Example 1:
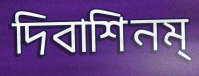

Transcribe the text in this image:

দিবাশিনম্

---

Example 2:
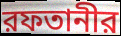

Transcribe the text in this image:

রফতানীর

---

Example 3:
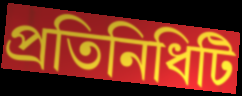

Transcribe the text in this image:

প্রতিনিধিটি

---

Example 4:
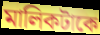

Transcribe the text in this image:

মালিকটাকে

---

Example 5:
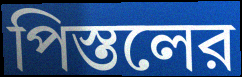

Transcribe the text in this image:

পিস্তলের